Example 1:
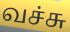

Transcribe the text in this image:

வச்சு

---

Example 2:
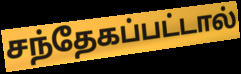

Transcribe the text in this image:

சந்தேகப்பட்டால்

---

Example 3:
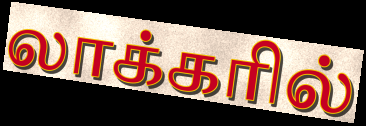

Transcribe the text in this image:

லாக்கரில்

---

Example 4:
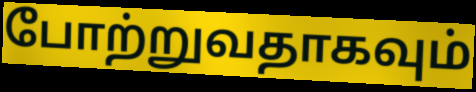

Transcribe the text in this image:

போற்றுவதாகவும்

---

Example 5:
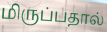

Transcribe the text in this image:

மிருப்பதால்